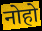
नोहो